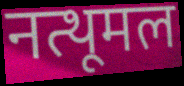
नत्थूमल